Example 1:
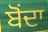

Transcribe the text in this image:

ਬੋੰਦਾ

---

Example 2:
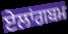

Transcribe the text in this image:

ਏਲਾਂਗਬਮ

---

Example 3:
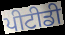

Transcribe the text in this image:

ਪੀਟੀਡੀ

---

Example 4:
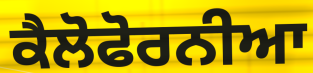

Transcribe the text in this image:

ਕੈਲੋਫੋਰਨੀਆ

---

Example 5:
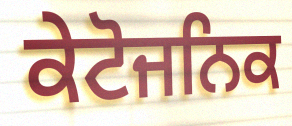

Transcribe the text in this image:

ਕੇਟੋਜਨਿਕ